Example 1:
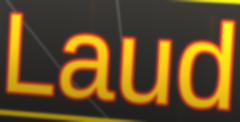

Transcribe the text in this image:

Laud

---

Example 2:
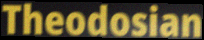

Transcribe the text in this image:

Theodosian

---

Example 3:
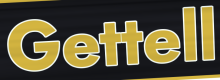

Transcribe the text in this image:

Gettell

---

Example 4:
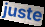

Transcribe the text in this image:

juste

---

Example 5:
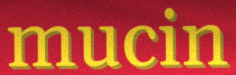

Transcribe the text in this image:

mucin